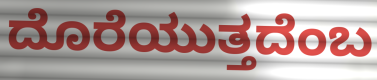
ದೊರೆಯುತ್ತದೆಂಬ